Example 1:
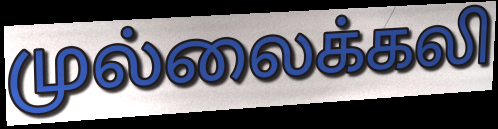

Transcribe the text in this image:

முல்லைக்கலி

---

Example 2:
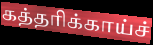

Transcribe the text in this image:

கத்தரிக்காய்ச்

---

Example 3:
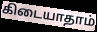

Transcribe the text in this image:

கிடையாதாம்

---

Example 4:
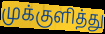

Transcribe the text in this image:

முக்குளித்து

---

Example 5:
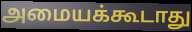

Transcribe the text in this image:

அமையக்கூடாது